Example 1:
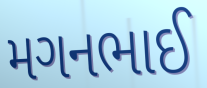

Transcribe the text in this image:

મગનભાઈ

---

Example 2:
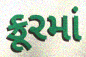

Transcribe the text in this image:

ક્રૂરમાં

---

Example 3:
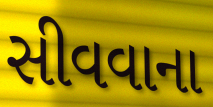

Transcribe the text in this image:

સીવવાના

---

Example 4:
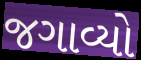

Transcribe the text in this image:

જગાવ્યો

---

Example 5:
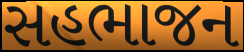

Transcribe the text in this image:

સહભાજન